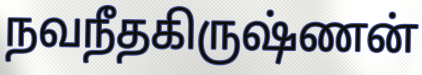
நவநீதகிருஷ்ணன்